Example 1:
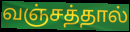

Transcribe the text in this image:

வஞ்சத்தால்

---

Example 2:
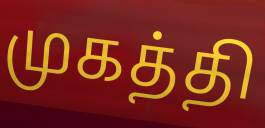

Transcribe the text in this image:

முகத்தி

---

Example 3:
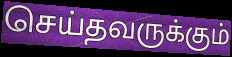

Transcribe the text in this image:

செய்தவருக்கும்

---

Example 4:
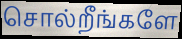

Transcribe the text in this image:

சொல்றீங்களே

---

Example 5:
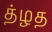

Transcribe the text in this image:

த்ழத